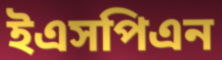
ইএসপিএন